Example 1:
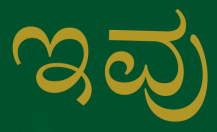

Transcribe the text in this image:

ಇವು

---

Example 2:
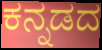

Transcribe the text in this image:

ಕನ್ನಡದ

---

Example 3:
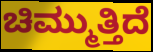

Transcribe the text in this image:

ಚಿಮ್ಮುತ್ತಿದೆ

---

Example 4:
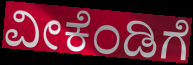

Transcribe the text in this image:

ವೀಕೆಂಡಿಗೆ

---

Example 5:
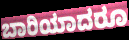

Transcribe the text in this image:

ಬಾರಿಯಾದರೂ